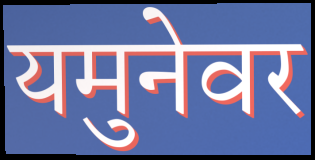
यमुनेवर